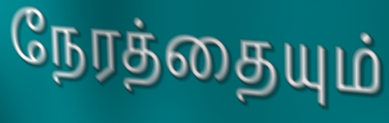
நேரத்தையும்